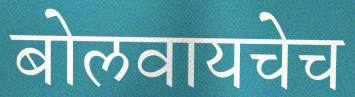
बोलवायचेच